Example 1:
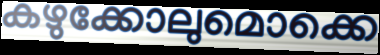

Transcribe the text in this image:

കഴുക്കോലുമൊക്കെ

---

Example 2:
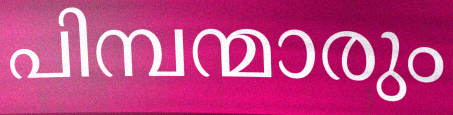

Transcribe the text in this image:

പിമ്പന്മാരും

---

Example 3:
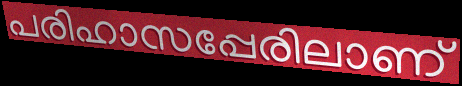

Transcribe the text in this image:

പരിഹാസപ്പേരിലാണ്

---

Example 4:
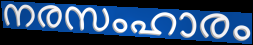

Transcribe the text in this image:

നരസംഹാരം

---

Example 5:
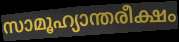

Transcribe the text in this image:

സാമൂഹ്യാന്തരീക്ഷം